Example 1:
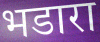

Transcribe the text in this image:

भडारा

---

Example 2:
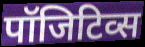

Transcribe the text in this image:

पॉजिटिव्स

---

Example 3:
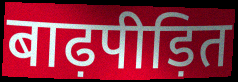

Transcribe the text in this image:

बाढ़पीड़ित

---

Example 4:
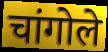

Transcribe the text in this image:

चांगोले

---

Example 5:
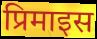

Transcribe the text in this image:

प्रिमाइस